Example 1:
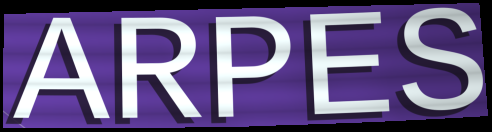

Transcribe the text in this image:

ARPES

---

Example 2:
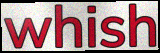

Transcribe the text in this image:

whish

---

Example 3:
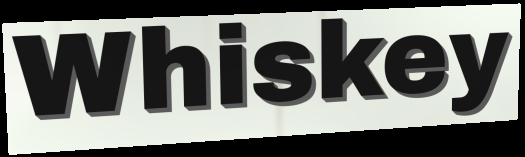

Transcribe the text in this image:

Whiskey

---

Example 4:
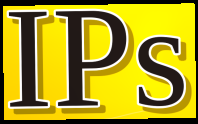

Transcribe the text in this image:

IPs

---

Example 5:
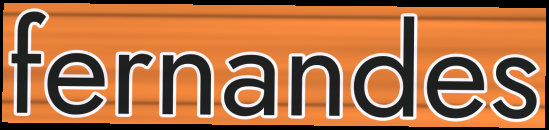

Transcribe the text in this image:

fernandes